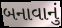
બનાવાનું